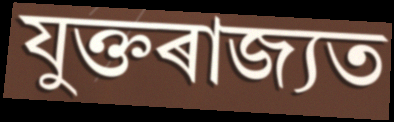
যুক্তৰাজ্যত